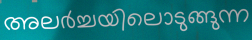
അലർച്ചയിലൊടുങ്ങുന്ന